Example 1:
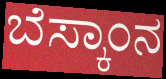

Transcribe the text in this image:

ಬೆಸ್ಕಾಂನ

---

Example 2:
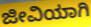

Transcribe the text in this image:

ಜೀವಿಯಾಗಿ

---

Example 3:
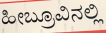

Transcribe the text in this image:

ಹೀಬ್ರೂವಿನಲ್ಲಿ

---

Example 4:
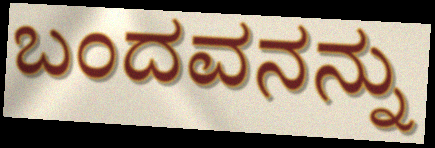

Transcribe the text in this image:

ಬಂದವನನ್ನು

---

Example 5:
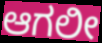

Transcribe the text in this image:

ಆಗಲೀ